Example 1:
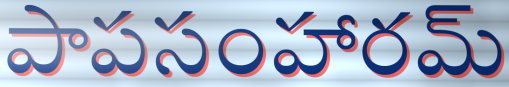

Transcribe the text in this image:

పాపసంహారమ్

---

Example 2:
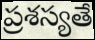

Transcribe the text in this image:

ప్రశస్యతే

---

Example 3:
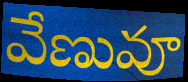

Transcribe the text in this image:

వేణువూ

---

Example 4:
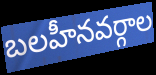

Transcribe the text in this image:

బలహీనవర్గాల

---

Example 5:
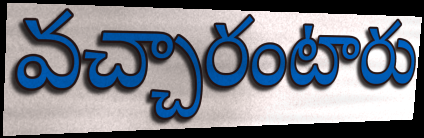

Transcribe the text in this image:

వచ్చారంటారు